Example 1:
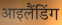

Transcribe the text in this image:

आइलैंडिंग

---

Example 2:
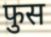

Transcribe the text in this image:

फुस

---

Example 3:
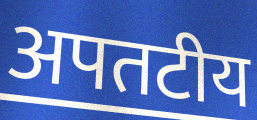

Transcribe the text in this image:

अपतटीय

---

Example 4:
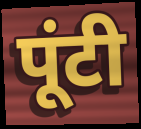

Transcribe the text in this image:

पूंटी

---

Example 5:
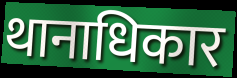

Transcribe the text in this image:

थानाधिकार